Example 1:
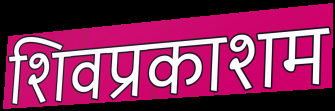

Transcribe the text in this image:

शिवप्रकाशम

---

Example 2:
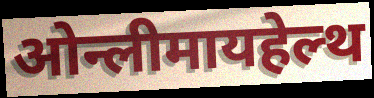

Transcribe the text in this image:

ओन्लीमायहेल्थ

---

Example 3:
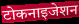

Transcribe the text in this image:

टोकनाइजेशन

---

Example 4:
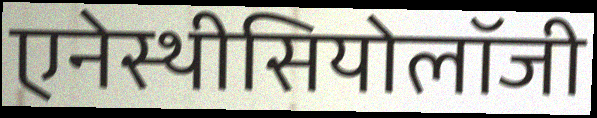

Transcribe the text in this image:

एनेस्थीसियोलॉजी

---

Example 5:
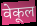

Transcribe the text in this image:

वेकूल